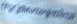
സുറുമയെഴുതിയ